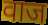
वाज